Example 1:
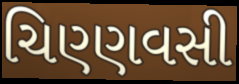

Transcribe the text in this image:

ચિણ્ણવસી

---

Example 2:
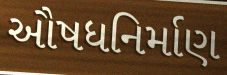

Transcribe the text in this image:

ઔષધનિર્માણ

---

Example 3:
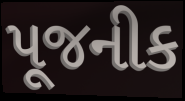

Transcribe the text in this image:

પૂજનીક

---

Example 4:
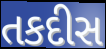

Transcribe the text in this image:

તકદીસ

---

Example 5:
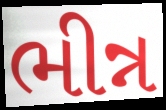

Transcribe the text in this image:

ભીન્ન